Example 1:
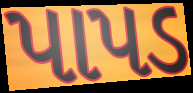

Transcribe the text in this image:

પાપડ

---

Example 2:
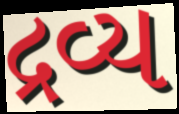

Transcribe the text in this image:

દ્રવ્ય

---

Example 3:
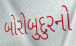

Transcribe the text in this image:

બોરોબુદુરનો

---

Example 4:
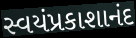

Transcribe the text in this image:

સ્વયંપ્રકાશાનંદ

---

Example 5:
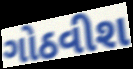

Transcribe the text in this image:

ગોઠવીશ